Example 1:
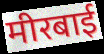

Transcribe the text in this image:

मीरबाई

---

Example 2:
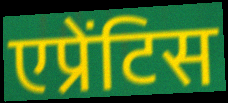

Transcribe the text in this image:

एप्रेंटिस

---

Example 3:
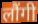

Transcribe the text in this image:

लौंगी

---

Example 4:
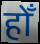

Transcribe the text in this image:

होँ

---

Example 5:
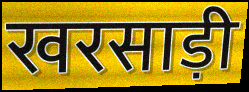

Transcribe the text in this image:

खरसाड़ी